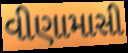
વીણામાસી